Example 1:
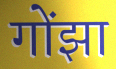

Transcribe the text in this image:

गोंझा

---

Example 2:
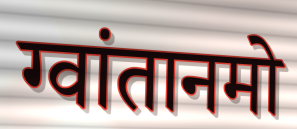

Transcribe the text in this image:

ग्वांतानमो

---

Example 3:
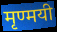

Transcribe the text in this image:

मृण्मयी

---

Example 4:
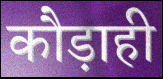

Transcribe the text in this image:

कौड़ाही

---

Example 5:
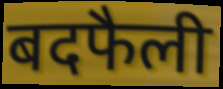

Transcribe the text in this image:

बदफैली